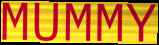
MUMMY